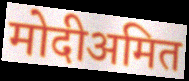
मोदीअमित